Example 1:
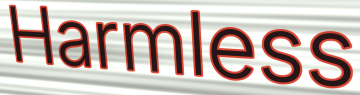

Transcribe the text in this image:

Harmless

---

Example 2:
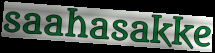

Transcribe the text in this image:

saahasakke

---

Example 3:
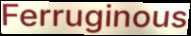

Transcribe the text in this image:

Ferruginous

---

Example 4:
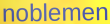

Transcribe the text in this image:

noblemen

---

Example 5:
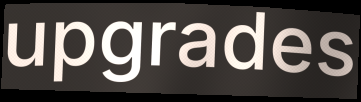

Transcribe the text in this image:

upgrades